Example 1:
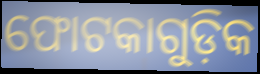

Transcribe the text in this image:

ଫୋଟକାଗୁଡ଼ିକ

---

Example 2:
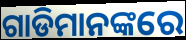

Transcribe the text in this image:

ଗାଡିମାନଙ୍କରେ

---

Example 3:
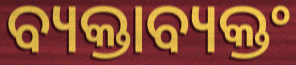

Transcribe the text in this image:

ବ୍ୟକ୍ତାବ୍ୟକ୍ତଂ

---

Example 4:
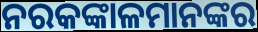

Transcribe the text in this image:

ନରକଙ୍କାଳମାନଙ୍କର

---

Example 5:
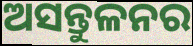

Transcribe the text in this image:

ଅସନ୍ତୁଳନର